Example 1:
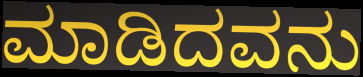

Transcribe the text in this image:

ಮಾಡಿದವನು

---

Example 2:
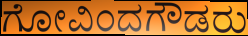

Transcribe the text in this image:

ಗೋವಿಂದಗೌಡರು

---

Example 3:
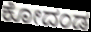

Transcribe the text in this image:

ಕೋದಂಡ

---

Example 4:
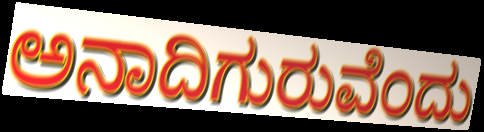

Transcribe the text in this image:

ಅನಾದಿಗುರುವೆಂದು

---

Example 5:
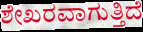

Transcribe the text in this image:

ಶೇಖರವಾಗುತ್ತಿದೆ